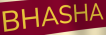
BHASHA